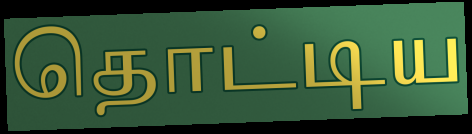
தொட்டிய